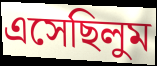
এসেছিলুম